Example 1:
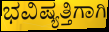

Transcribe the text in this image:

ಭವಿಷ್ಯತ್ತಿಗಾಗಿ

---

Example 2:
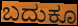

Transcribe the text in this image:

ಬದುಕೂ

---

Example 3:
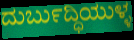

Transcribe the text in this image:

ದುರ್ಬುದ್ಧಿಯುಳ್ಳ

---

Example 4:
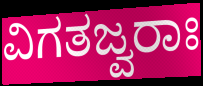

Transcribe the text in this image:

ವಿಗತಜ್ವರಾಃ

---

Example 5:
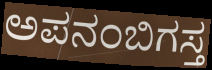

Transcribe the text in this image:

ಅಪನಂಬಿಗಸ್ತ